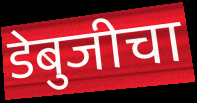
डेबुजीचा